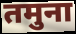
तमुना